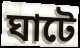
ঘাটে